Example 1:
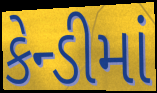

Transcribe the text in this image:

કેન્ડીમાં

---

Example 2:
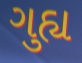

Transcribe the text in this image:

ગુહ્ય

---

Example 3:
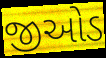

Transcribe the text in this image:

જીઓડ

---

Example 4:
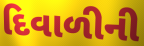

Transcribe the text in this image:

દિવાળીની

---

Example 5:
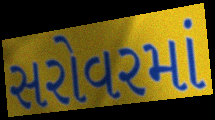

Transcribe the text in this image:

સરોવરમાં